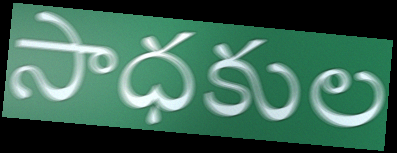
సాధకుల